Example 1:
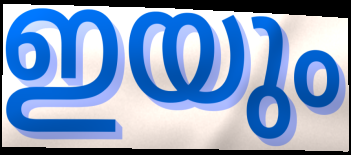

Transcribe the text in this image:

ഇയും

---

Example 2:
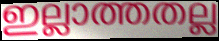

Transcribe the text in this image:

ഇല്ലാത്തതല്ല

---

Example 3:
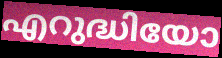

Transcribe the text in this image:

എറുദ്ധിയോ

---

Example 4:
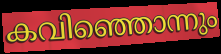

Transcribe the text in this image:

കവിഞ്ഞൊന്നും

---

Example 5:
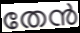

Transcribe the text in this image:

തേൻ